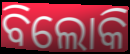
ବିଲୋକି